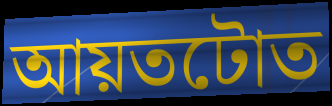
আয়তটোত